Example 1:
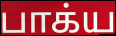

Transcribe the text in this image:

பாக்ய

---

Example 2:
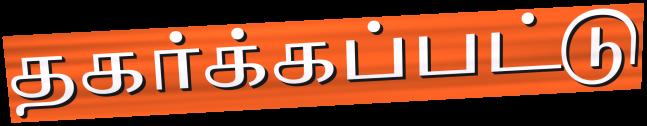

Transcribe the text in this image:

தகர்க்கப்பட்டு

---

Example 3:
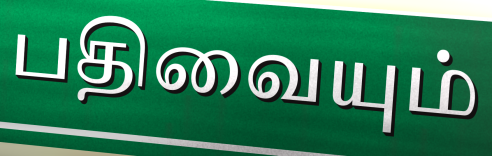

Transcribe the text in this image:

பதிவையும்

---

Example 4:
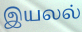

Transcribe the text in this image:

இயலல்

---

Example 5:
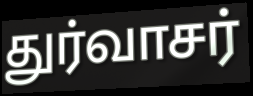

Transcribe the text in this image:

துர்வாசர்